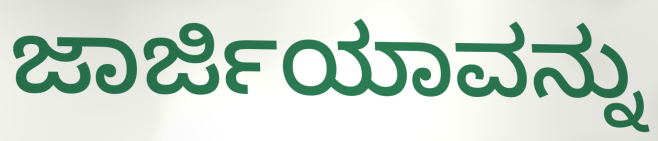
ಜಾರ್ಜಿಯಾವನ್ನು